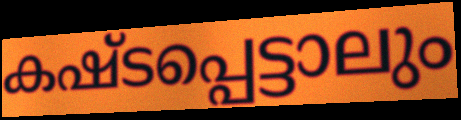
കഷ്ടപ്പെട്ടാലും